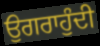
ਉਗਰਾਹੁੰਦੀ